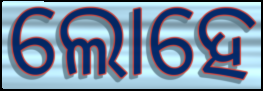
ଲୋହେ